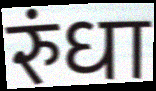
रुंधा